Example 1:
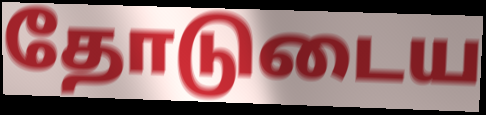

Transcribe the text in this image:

தோடுடைய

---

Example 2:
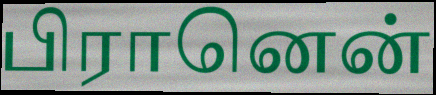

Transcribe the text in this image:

பிரானென்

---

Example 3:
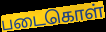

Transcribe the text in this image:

படைகொள்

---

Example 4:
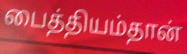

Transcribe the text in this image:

பைத்தியம்தான்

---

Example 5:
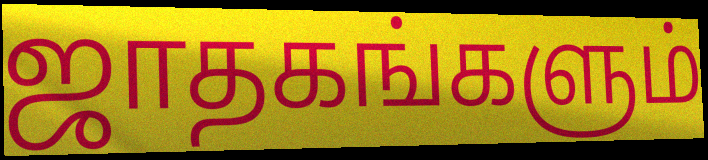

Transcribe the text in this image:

ஜாதகங்களும்